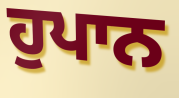
ਹੁਪਾਨ